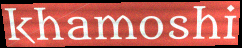
khamoshi